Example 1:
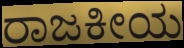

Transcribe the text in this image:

ರಾಜಕೀಯ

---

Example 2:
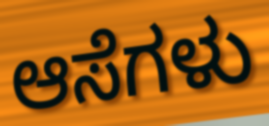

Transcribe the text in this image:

ಆಸೆಗಳು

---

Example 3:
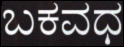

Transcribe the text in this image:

ಬಕವಧ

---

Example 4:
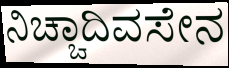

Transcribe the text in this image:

ನಿಚ್ಚಾದಿವಸೇನ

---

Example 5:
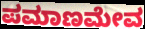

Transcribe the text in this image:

ಪಮಾಣಮೇವ